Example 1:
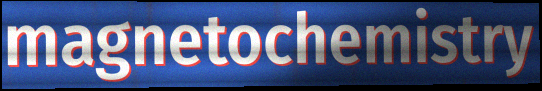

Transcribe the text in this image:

magnetochemistry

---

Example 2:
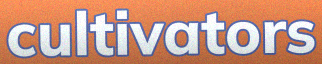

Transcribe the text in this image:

cultivators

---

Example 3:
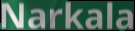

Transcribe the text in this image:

Narkala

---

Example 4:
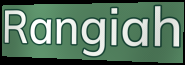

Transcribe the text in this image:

Rangiah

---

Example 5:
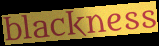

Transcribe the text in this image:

blackness